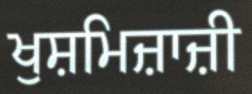
ਖੁਸ਼ਮਿਜ਼ਾਜ਼ੀ